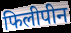
फिलीपीन